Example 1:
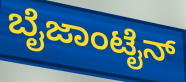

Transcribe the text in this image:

ಬೈಜಾಂಟೈನ್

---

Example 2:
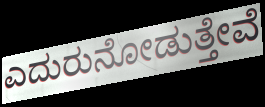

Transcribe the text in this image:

ಎದುರುನೋಡುತ್ತೇವೆ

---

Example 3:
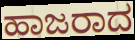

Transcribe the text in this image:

ಹಾಜರಾದ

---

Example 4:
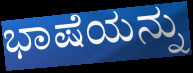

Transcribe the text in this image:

ಭಾಷೆಯನ್ನು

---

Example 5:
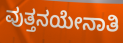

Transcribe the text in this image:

ವುತ್ತನಯೇನಾತಿ